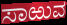
ಸಾಱುವ